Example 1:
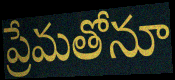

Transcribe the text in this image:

ప్రేమతోనూ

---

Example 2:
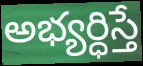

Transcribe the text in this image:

అభ్యర్ధిస్తే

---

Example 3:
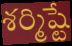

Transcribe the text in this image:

శర్మిష్టే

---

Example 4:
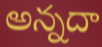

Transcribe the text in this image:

అన్నదా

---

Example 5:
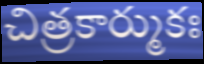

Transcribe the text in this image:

చిత్రకార్ముకః